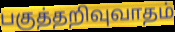
பகுத்தறிவுவாதம்